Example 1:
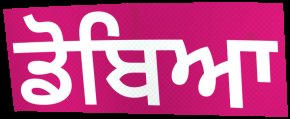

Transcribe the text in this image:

ਡੋਬਿਆ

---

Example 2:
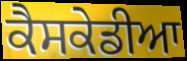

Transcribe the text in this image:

ਕੈਸਕੇਡੀਆ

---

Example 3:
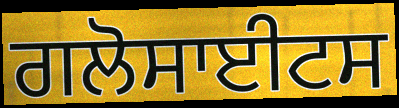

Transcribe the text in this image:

ਗਲੋਸਾਈਟਸ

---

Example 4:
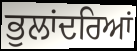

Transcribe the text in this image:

ਭੁਲਾਂਦਰਿਆਂ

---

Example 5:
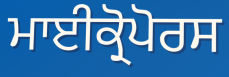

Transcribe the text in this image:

ਮਾਈਕ੍ਰੋਪੋਰਸ